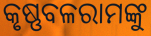
କୃଷ୍ଣବଳରାମଙ୍କୁ